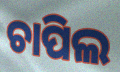
ଚାପିଲ